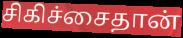
சிகிச்சைதான்